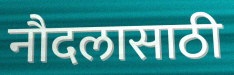
नौदलासाठी